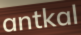
antkal